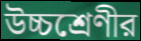
উচ্চশ্রেণীর